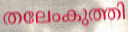
തലേംകുത്തി